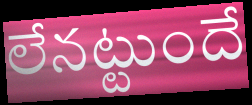
లేనట్టుందే